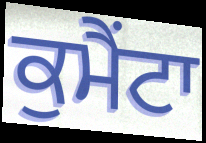
ਕੁਮੈਂਟਾ